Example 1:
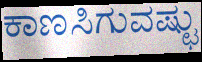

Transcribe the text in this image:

ಕಾಣಸಿಗುವಷ್ಟು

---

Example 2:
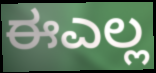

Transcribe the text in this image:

ಈಎಲ್ಲ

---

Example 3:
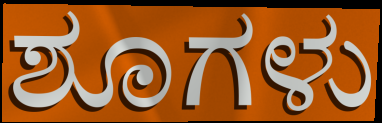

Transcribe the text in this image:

ಶೂಗಳು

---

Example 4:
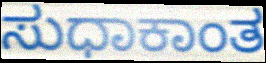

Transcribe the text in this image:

ಸುಧಾಕಾಂತ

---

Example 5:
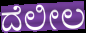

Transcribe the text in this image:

ದೆಲೀಲ